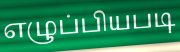
எழுப்பியபடி